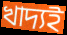
খাদ্যই